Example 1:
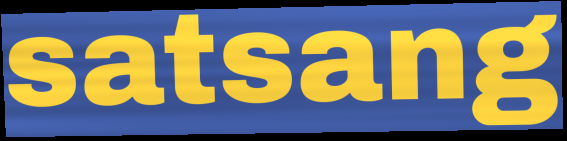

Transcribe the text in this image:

satsang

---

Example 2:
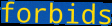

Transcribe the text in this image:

forbids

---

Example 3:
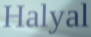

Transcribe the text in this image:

Halyal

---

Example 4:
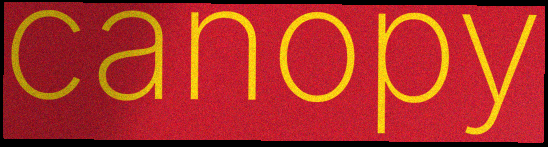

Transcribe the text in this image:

canopy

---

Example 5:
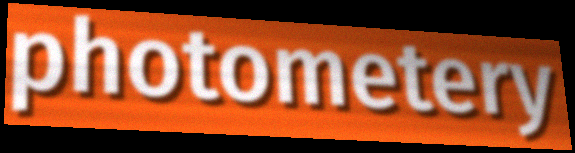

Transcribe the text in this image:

photometery